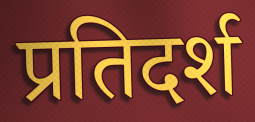
प्रतिदर्श